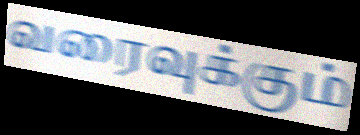
வரைவுக்கும்